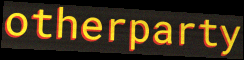
otherparty